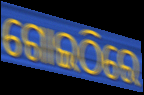
ଗୋଇଠିରେ